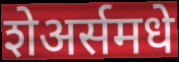
शेअर्समधे